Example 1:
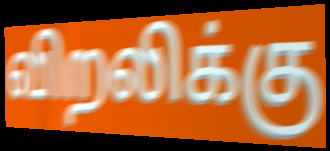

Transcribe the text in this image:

விறலிக்கு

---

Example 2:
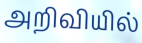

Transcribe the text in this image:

அறிவியில்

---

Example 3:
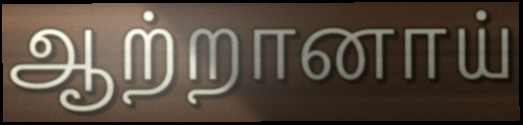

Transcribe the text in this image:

ஆற்றானாய்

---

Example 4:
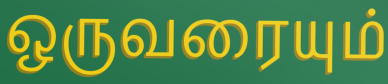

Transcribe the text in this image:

ஒருவரையும்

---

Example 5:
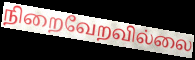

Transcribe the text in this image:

நிறைவேறவில்லை